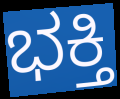
ಭಕ್ತಿ